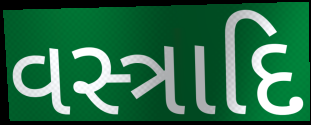
વસ્ત્રાદિ